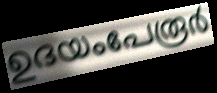
ഉദയംപേരൂർ